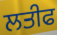
ਲਤੀਫ